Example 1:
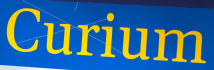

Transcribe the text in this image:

Curium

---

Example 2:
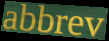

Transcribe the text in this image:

abbrev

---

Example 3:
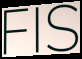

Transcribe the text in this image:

FIS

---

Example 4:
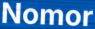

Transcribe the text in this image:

Nomor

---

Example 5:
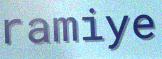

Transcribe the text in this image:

ramiye